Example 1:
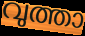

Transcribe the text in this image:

വുത്താ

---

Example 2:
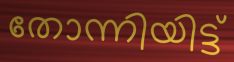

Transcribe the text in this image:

തോന്നിയിട്ട്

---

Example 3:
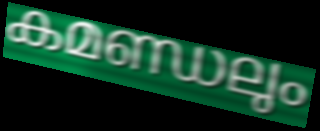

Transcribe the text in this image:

കമണ്ഡലും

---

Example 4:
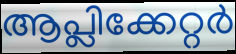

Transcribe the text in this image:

ആപ്ലിക്കേറ്റർ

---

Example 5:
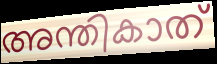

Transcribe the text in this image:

അന്തികാത്